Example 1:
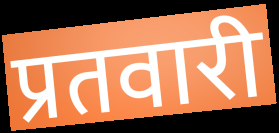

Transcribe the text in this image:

प्रतवारी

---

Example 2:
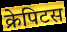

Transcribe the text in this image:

क्रेपिटस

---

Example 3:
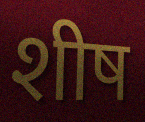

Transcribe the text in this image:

शीष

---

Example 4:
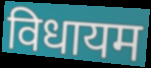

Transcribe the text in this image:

विधायम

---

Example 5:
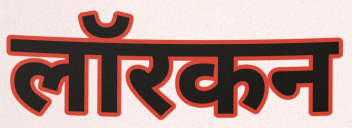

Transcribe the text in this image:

लॉरकन